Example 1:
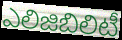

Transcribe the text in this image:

ఎలిజిబిలిటీ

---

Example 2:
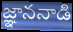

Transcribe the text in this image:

జ్ఞాననాడి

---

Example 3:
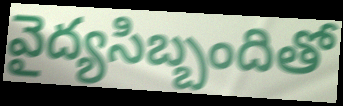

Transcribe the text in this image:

వైద్యసిబ్బందితో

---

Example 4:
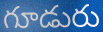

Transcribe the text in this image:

గూడురు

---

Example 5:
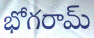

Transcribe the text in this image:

భోగరామ్